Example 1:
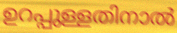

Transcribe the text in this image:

ഉറപ്പുള്ളതിനാൽ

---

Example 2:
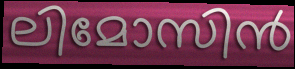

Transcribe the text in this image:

ലിമോസിൻ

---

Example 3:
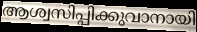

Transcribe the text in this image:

ആശ്വസിപ്പിക്കുവാനായി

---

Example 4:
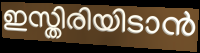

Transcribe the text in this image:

ഇസ്തിരിയിടാൻ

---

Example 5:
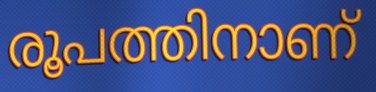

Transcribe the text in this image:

രൂപത്തിനാണ്